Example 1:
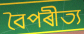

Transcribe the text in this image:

বৈপৰীত্য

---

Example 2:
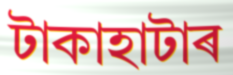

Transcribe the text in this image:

টাকাহাটাৰ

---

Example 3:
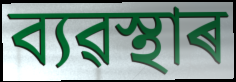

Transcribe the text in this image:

ব্যৱস্থাৰ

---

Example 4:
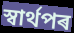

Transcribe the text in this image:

স্বাৰ্থপৰ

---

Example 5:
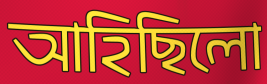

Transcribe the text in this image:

আহিছিলো